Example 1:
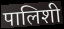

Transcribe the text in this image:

पालिशी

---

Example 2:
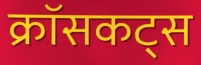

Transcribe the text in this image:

क्रॉसकट्स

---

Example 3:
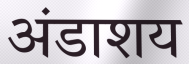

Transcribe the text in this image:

अंडाशय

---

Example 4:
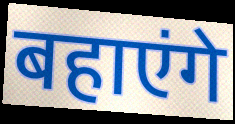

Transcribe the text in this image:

बहाएंगे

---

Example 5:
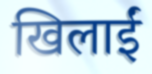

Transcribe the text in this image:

खिलाईं